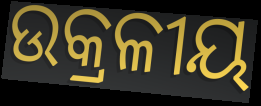
ଉକ୍ରଳୀୟ